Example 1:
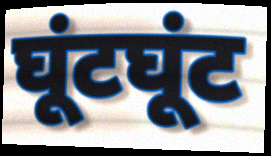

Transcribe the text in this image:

घूंटघूंट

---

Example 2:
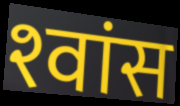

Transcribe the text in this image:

श्वांस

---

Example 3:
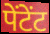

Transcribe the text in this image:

पेंटेंट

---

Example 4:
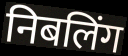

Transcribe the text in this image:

निबलिंग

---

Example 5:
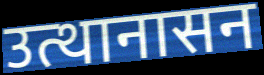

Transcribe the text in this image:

उत्थानासन